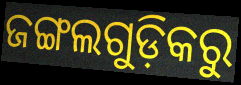
ଜଙ୍ଗଲଗୁଡ଼ିକରୁ